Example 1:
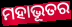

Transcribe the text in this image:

ମହାଭୂତର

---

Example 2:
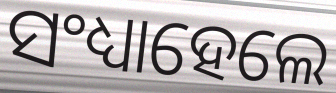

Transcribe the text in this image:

ସଂଧ୍ୟାହେଲେ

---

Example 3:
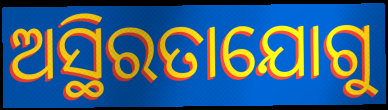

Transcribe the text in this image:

ଅସ୍ଥିରତାଯୋଗୁ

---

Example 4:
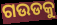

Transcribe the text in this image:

ଗଉଡକୁ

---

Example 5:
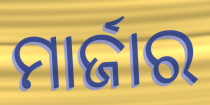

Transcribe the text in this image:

ମାର୍ଜାର